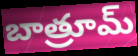
బాత్రూమ్